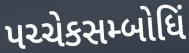
પચ્ચેકસમ્બોધિં